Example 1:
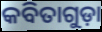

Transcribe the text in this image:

କବିତାଗୁଡ଼ା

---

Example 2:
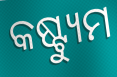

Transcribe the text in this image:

କଷ୍ଟ୍ୟୁମ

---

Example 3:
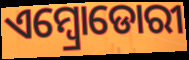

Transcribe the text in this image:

ଏମ୍ବ୍ରୋଡୋରୀ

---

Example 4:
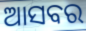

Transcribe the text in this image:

ଆସବର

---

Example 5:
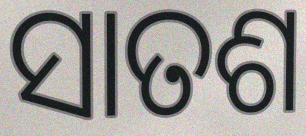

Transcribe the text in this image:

ସାତଶ